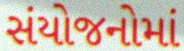
સંયોજનોમાં